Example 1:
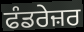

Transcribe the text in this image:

ਫੰਡਰੇਜ਼ਰ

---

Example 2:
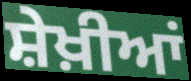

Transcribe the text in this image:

ਸ਼ੇਖ਼ੀਆਂ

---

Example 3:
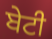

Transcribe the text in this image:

ਬੇਟੀ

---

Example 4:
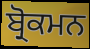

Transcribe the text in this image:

ਬ੍ਰੋਕਮਨ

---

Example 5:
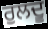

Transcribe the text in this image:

ਰੁਲਦੂ